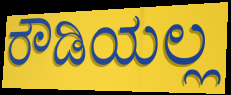
ರೌಡಿಯಲ್ಲ